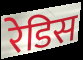
रेडिस